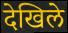
देखिले